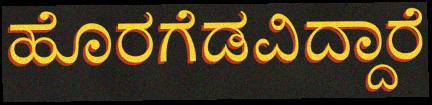
ಹೊರಗೆಡವಿದ್ದಾರೆ